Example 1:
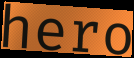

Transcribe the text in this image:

hero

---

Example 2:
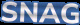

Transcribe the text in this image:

SNAG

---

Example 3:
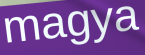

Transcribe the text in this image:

magya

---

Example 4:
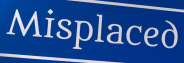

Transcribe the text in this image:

Misplaced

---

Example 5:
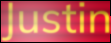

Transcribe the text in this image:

Justin